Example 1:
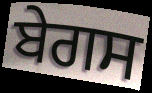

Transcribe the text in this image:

ਬੇਗਸ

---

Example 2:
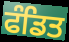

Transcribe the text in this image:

ਫੰਡਿਤ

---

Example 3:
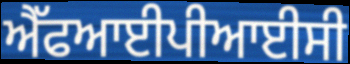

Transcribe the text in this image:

ਐੱਫਆਈਪੀਆਈਸੀ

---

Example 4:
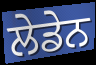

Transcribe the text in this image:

ਲੇਡੇਨ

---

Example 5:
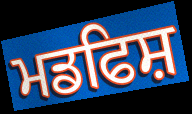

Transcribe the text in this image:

ਮਡਫਿਸ਼